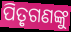
ପିତୃଗଣଙ୍କୁ